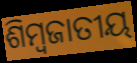
ଶିମ୍ବଜାତୀୟ